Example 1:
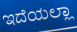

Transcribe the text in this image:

ಇದೆಯಲ್ಲಾ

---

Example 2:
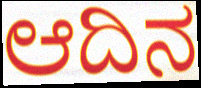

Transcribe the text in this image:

ಆದಿನ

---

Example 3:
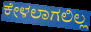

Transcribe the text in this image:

ಕೇಳಲಾಗಲಿಲ್ಲ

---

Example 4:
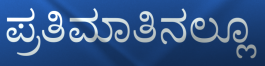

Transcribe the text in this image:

ಪ್ರತಿಮಾತಿನಲ್ಲೂ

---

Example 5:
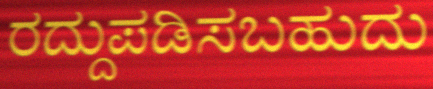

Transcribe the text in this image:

ರದ್ದುಪಡಿಸಬಹುದು